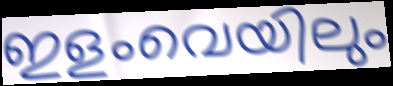
ഇളംവെയിലും